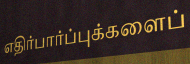
எதிர்பார்ப்புக்களைப்